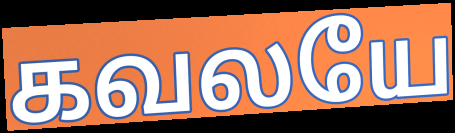
கவலயே